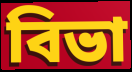
বিভা